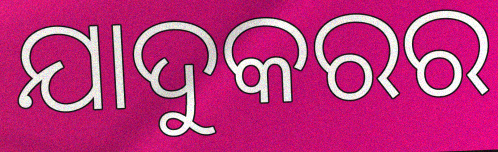
ଯାଦୁକରର